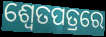
ଶ୍ୱେତପତ୍ରରେ